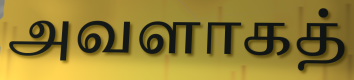
அவளாகத்